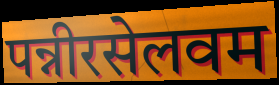
पन्नीरसेलवम